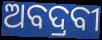
ଅବଦ୍ରବୀ